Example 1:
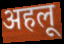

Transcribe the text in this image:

अहलू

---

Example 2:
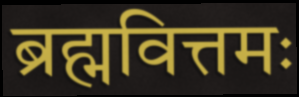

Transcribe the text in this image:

ब्रह्मवित्तमः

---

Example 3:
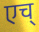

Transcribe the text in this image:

एच्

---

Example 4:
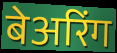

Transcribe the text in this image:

बेअरिंग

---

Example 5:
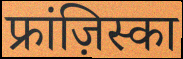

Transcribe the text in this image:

फ्रांज़िस्का